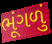
ભૂંગળું